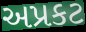
અપ્રકટ